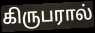
கிருபரால்